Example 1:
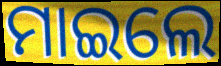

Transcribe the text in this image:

ମାଇଲେ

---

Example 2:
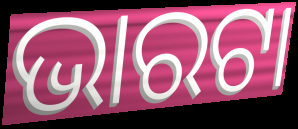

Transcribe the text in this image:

ଭାରଟା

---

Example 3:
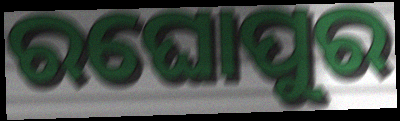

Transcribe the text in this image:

ରଘୋପୁର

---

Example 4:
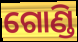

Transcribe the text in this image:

ଗୋଣ୍ଡି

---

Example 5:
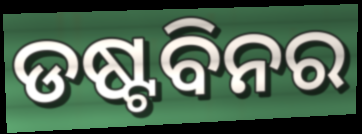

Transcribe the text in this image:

ଡଷ୍ଟବିନର